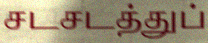
சடசடத்துப்